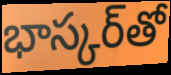
భాస్కర్‌తో